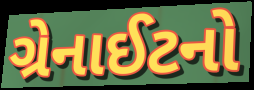
ગ્રેનાઈટનો